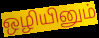
ஒழியினும்